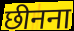
छीनना